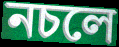
নচলে